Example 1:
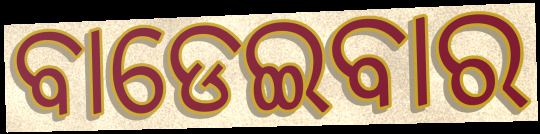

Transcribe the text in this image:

ବାଡେଇବାର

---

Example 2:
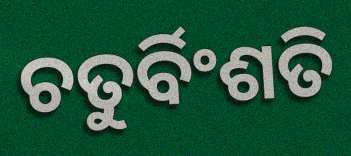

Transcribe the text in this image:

ଚତୁର୍ବିଂଶତି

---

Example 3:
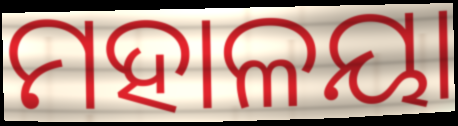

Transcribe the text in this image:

ମହାଳୟା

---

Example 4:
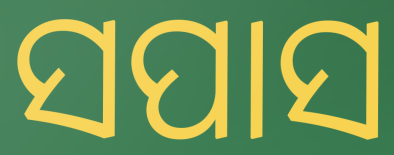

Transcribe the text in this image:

ସପାସ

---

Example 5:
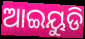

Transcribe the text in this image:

ଆଇୟୁଡି